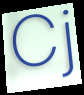
Cj